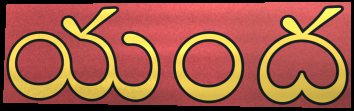
యంద